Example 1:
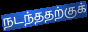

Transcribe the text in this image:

நடந்ததற்குக்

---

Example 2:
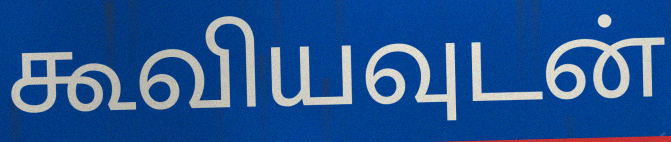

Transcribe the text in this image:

கூவியவுடன்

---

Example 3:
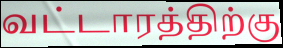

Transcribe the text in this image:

வட்டாரத்திற்கு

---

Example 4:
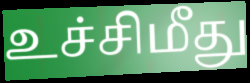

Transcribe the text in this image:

உச்சிமீது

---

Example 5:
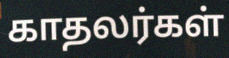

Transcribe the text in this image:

காதலர்கள்